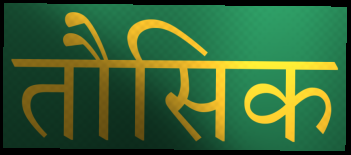
तौसिक